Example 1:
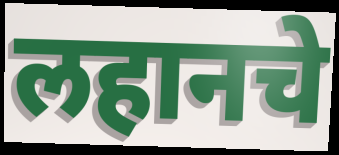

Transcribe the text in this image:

लहानचे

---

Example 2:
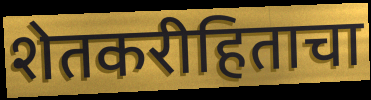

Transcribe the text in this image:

शेतकरीहिताचा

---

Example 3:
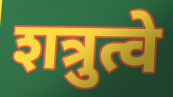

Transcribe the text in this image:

शत्रुत्वे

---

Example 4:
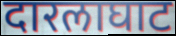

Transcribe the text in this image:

दारलाघाट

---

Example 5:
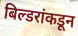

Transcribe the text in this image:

बिल्डरांकडून